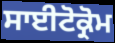
ਸਾਈਟੋਕ੍ਰੋਮ